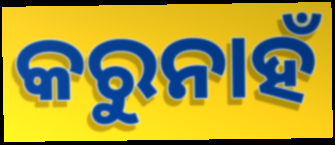
କରୁନାହଁ